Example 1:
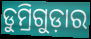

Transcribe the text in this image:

ଡୁମ୍ରିଗୁଡ଼ାର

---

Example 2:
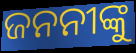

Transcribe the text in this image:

ଜନନୀଙ୍କୁ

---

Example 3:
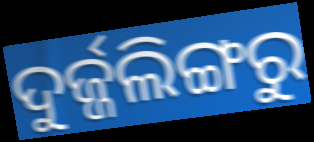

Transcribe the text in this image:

ଦୁର୍ଜ୍ଜଲିଙ୍ଗରୁ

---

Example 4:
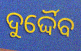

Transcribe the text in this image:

ଦୁର୍ଦ୍ଦୈବ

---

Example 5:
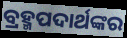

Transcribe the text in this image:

ବ୍ରହ୍ମପଦାର୍ଥଙ୍କର